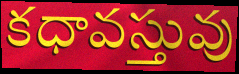
కధావస్తువు